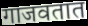
गाजवतात